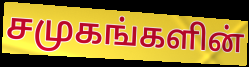
சமுகங்களின்